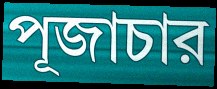
পূজাচার